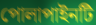
পোলাপাইনটি